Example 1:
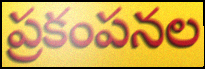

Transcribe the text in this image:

ప్రకంపనల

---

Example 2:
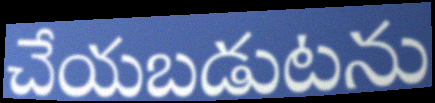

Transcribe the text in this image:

చేయబడుటను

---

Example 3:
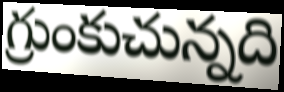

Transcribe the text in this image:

గ్రుంకుచున్నది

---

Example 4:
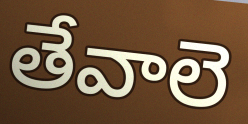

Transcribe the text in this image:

తేవాలె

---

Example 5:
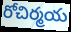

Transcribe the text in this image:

రోచిర్మయ